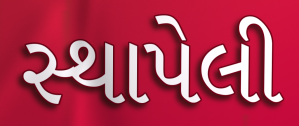
સ્‍થાપેલી